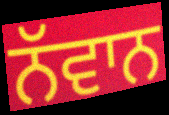
ਨੱਵਾਨ